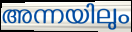
അന്നയിലും